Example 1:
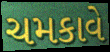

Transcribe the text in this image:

ચમકાવે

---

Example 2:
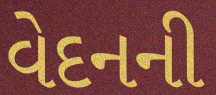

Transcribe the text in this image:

વેદનની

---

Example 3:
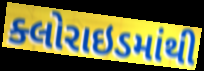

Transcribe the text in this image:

ક્લોરાઇડમાંથી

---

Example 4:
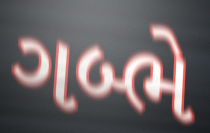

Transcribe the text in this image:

ગબ્ભે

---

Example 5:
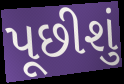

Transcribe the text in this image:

પૂછીશું